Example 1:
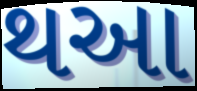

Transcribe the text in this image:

થઆ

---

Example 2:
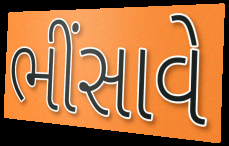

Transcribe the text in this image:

ભીંસાવે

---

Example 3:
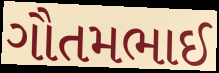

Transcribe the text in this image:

ગૌતમભાઈ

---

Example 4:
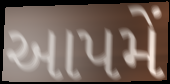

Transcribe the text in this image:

આપમેં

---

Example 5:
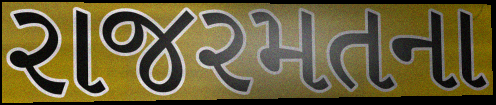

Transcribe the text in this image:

રાજરમતના